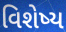
વિશેષ્ય